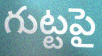
గుట్టపై